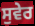
ਸੁਵੇਰ